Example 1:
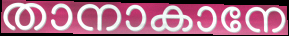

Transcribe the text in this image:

താനാകാനേ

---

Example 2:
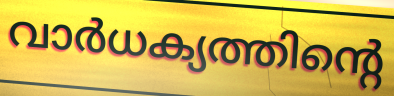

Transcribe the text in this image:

വാർധക്യത്തിന്റെ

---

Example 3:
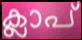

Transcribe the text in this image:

ക്ലാപ്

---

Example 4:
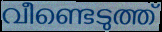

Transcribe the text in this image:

വീണ്ടെടുത്ത്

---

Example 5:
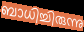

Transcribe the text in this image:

ബാധിച്ചിരുന്നു